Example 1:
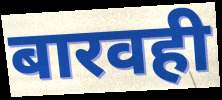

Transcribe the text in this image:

बारवही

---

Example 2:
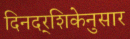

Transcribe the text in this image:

दिनदर्शिकेनुसार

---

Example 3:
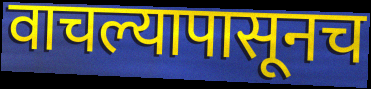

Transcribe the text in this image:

वाचल्यापासूनच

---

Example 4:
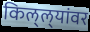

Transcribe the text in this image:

किल्ल्यांवर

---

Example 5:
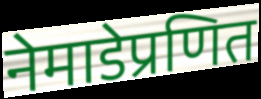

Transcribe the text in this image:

नेमाडेप्रणित